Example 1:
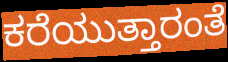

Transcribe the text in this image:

ಕರೆಯುತ್ತಾರಂತೆ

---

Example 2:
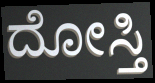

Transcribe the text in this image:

ದೋಸ್ತಿ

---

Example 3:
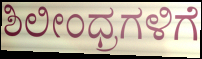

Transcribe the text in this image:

ಶಿಲೀಂಧ್ರಗಳಿಗೆ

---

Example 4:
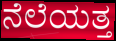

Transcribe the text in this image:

ನೆಲೆಯತ್ತ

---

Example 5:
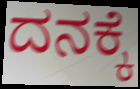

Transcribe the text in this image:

ದನಕ್ಕೆ